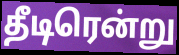
தீடிரென்று